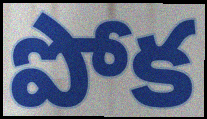
పోక